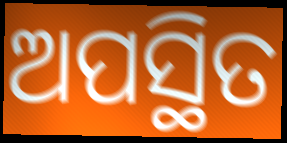
ଅପସ୍ଥିତ